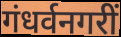
गंधर्वनगरीं